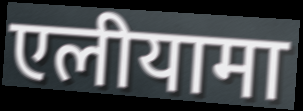
एलीयामा